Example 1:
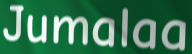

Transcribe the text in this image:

Jumalaa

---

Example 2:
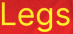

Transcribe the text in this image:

Legs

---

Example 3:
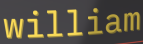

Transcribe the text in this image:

william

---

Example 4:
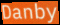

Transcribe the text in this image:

Danby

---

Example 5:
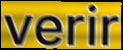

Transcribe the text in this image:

verir